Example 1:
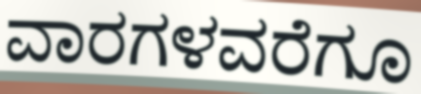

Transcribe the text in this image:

ವಾರಗಳವರೆಗೂ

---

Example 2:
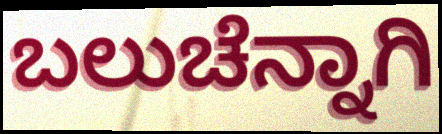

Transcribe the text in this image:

ಬಲುಚೆನ್ನಾಗಿ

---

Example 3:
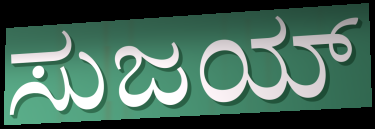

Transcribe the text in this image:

ಸುಜಯ್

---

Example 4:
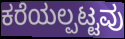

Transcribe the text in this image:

ಕರೆಯಲ್ಪಟ್ಟವು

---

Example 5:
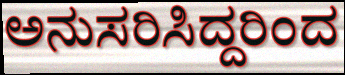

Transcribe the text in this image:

ಅನುಸರಿಸಿದ್ದರಿಂದ